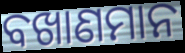
ବଖାଣମାନ